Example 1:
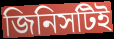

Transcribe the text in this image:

জিনিসটিই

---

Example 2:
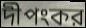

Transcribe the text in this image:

দীপংকর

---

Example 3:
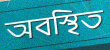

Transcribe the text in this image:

অবস্থিত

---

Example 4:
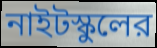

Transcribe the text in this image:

নাইটস্কুলের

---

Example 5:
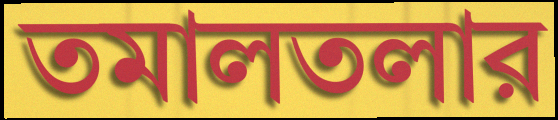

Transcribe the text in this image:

তমালতলার